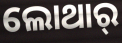
ଲୋଥାର୍